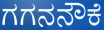
ಗಗನನೌಕೆ